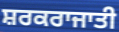
ਸ਼ਰਕਰਾਜਾਤੀ